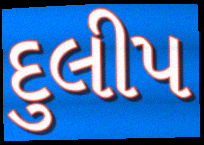
દુલીપ